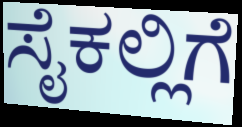
ಸೈಕಲ್ಲಿಗೆ